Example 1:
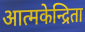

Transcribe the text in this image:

आत्मकेन्द्रिता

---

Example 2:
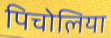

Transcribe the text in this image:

पिचोलिया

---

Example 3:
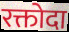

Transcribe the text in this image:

रक्तोदा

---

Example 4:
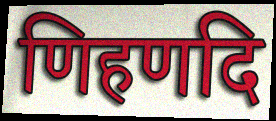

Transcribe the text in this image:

णिहणदि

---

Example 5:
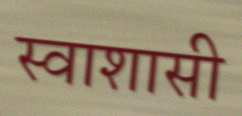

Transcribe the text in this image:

स्वाशासी